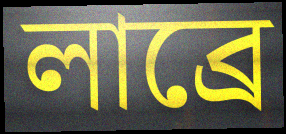
লাব্রে